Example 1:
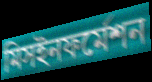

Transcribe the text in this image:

মিসইনফর্মেশন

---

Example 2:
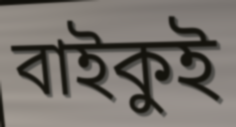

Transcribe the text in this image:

বাইকুই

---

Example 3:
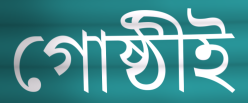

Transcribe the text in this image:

গোষ্ঠীই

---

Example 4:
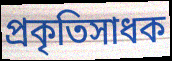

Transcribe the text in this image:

প্রকৃতিসাধক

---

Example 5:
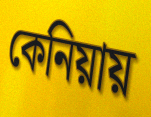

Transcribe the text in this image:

কেনিয়ায়